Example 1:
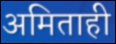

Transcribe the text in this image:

अमिताही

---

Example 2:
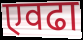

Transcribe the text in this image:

एवढा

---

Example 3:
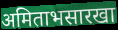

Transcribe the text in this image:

अमिताभसारखा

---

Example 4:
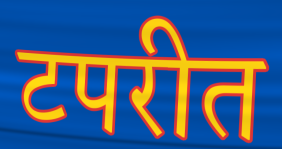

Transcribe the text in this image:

टपरीत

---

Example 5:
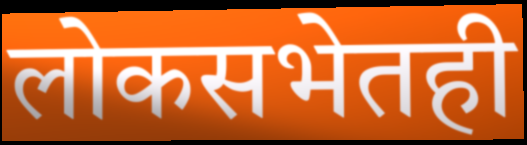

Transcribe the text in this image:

लोकसभेतही